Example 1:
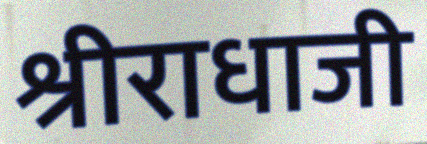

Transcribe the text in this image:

श्रीराधाजी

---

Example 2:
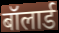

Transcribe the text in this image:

बॉलार्ड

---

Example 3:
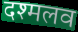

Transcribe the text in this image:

दश्मलव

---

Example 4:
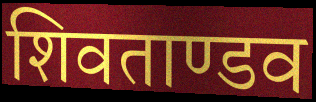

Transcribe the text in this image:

शिवताण्डव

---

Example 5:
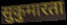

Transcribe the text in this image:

सुकुमारता